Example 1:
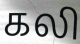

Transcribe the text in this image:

கலி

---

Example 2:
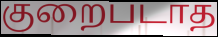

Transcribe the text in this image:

குறைபடாத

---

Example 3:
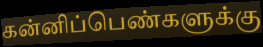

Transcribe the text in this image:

கன்னிப்பெண்களுக்கு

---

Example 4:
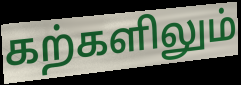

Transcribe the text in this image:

கற்களிலும்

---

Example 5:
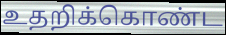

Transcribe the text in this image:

உதறிக்கொண்ட